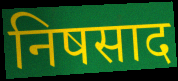
निषसाद